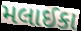
મલાઈકા